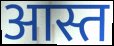
आस्त